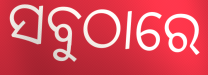
ସବୁଠାରେ